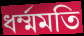
ধর্ম্মমতি